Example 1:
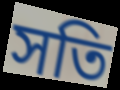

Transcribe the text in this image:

সতি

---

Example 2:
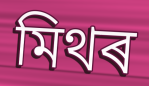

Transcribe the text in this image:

মিথৰ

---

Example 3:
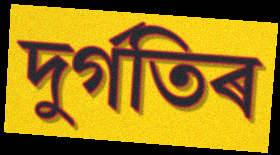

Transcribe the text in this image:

দুৰ্গতিৰ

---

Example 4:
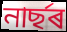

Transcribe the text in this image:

নাৰ্ছৰ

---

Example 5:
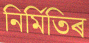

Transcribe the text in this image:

নিৰ্মিতিৰ